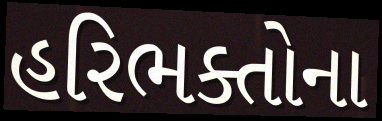
હરિભક્તોના